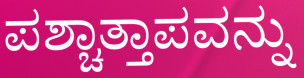
ಪಶ್ಚಾತ್ತಾಪವನ್ನು